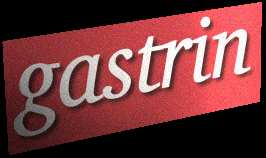
gastrin